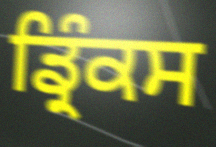
ਡ੍ਰਿੰਕਸ